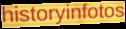
historyinfotos